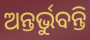
ଅନ୍ତର୍ଭୁବନ୍ତି